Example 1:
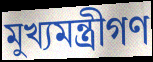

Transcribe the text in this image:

মুখ্যমন্ত্রীগণ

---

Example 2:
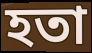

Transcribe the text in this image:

হতা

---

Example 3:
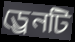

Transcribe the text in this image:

ড্রেনটি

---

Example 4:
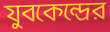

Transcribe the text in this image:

যুবকেন্দ্রের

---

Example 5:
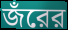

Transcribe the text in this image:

জঁরের